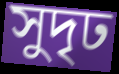
সুদৃঢ